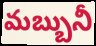
మబ్బునీ